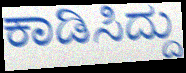
ಕಾಡಿಸಿದ್ದು